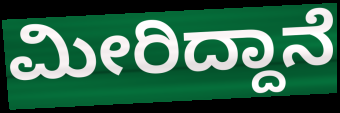
ಮೀರಿದ್ದಾನೆ